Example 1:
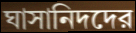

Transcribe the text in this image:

ঘাসানিদদের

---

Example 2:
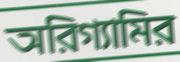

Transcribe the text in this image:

অরিগ্যামির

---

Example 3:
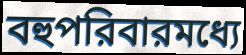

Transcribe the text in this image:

বহুপরিবারমধ্যে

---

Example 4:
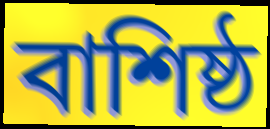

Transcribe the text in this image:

বাশিষ্ঠ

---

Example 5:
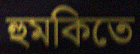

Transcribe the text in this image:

হুমকিতে